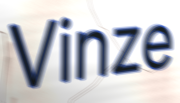
Vinze